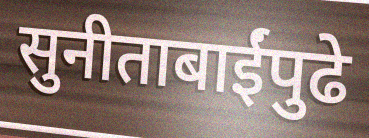
सुनीताबाईंपुढे